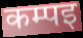
कम्पइ